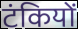
टंकियों